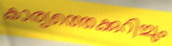
കാര്യത്തെക്കുറിച്ചും